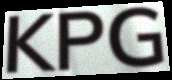
KPG